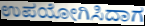
ಉಪಯೋಗಿಸಿದಾಗ